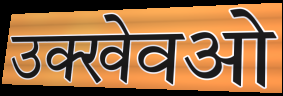
उक्खेवओ